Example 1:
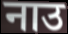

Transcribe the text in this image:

नाउ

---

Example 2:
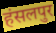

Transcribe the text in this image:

हंसलपुर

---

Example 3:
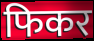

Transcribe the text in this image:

फिकर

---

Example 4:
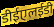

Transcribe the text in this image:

डीईएलईडी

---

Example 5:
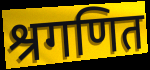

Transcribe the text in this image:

श्रगणित